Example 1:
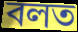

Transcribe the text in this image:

বলত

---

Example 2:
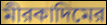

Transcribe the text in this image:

মীরকাদিমের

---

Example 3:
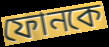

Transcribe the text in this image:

ফোনকে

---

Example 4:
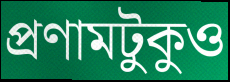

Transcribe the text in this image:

প্রণামটুকুও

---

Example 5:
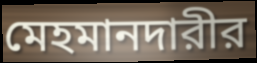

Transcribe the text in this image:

মেহমানদারীর